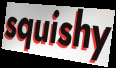
squishy